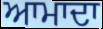
ਆਮਾਦਾ